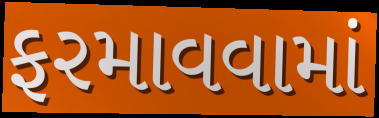
ફરમાવવામાં